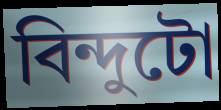
বিন্দুটো